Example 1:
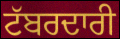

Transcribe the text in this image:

ਟੱਬਰਦਾਰੀ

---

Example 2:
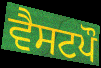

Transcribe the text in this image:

ਵੈਸਟਪੌ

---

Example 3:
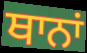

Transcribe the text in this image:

ਥਾਨਾਂ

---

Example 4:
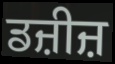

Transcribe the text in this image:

ਡਜ਼ੀਜ਼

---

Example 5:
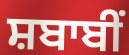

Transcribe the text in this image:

ਸ਼ਬਾਬੀਂ